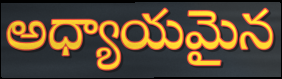
అధ్యాయమైన